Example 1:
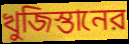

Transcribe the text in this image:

খুজিস্তানের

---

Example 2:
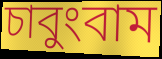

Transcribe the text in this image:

চাবুংবাম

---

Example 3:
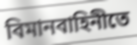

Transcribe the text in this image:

বিমানবাহিনীতে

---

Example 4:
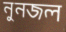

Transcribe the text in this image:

নুনজল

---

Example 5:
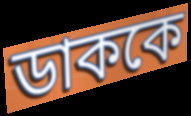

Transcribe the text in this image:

ডাককে